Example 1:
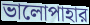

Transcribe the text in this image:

ভালোপাহার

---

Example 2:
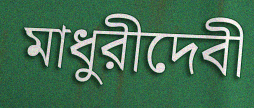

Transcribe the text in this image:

মাধুরীদেবী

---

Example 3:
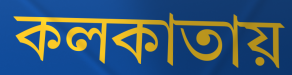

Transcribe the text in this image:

কলকাতায়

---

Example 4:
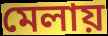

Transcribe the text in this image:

মেলায়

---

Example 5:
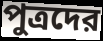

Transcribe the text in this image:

পুত্রদের